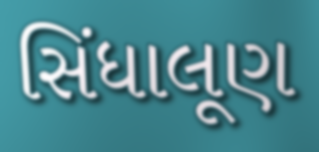
સિંધાલૂણ